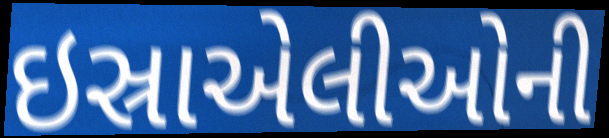
ઇસ્રાએલીઓની